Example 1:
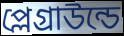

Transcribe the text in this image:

প্লেগ্রাউন্ডে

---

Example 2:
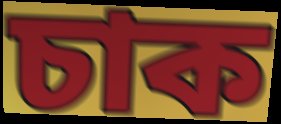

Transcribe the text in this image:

চাক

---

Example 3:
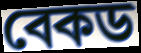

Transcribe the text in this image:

বেকড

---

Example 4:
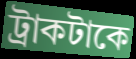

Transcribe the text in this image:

ট্রাকটাকে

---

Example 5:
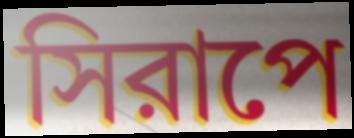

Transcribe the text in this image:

সিরাপে